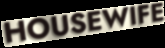
HOUSEWIFE